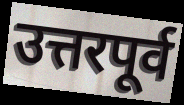
उत्तरपूर्व